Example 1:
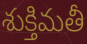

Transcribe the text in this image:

శుక్తిమతీ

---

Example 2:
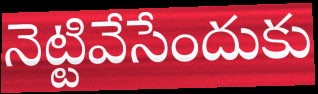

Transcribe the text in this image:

నెట్టివేసేందుకు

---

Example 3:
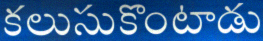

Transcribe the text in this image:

కలుసుకొంటాడు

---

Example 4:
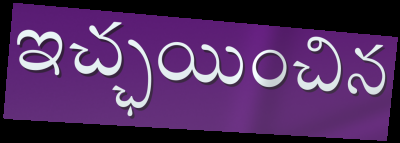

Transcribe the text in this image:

ఇచ్ఛయించిన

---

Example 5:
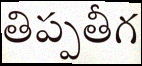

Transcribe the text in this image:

తిప్పతీగ